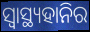
ସ୍ଵାସ୍ଥ୍ୟହାନିର